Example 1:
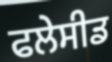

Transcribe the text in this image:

ਫਲੇਸੀਡ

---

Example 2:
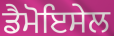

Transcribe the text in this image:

ਡੈਮੋਇਸੇਲ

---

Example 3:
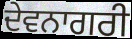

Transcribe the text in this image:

ਦੇਵਨਾਗਰੀ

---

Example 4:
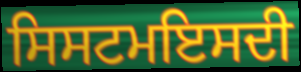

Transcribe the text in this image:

ਸਿਸਟਮਇਸਦੀ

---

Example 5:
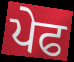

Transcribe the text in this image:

ਪੇਫ